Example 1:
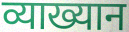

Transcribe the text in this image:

व्याख्यान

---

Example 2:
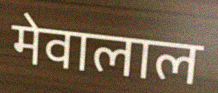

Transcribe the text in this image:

मेवालाल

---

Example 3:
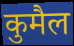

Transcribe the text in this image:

कुमैल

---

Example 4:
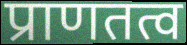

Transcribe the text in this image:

प्राणतत्व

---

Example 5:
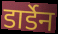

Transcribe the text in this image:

डार्डेन